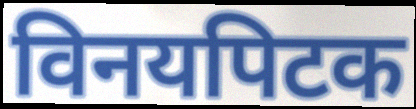
विनयपिटक